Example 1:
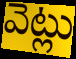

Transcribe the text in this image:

వెట్లు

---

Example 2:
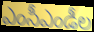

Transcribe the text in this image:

ఎంసీఎండీల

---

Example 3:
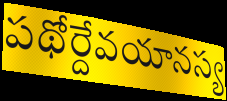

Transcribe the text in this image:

పథోర్దేవయానస్య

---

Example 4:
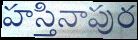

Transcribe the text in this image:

హస్తినాపుర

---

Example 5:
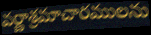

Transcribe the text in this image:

వర్ణాశ్రమాచారములను